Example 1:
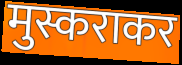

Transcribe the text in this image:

मुस्कराकर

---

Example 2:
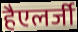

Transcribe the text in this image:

हैएलर्जी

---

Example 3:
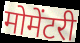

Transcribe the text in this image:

मोमेंटरी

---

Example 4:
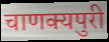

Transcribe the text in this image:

चाणक्यपुरी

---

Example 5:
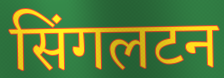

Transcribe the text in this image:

सिंगलटन